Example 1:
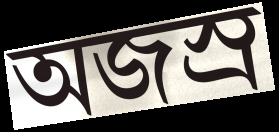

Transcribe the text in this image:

অজস্ৰ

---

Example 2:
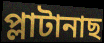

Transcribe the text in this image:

প্লাটানাছ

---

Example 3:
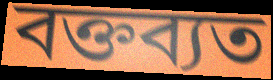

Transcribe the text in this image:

বক্তব্যত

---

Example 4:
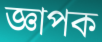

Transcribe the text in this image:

জ্ঞাপক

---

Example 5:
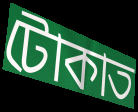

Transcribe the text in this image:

টোকাত